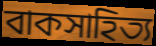
বাকসাহিত্য